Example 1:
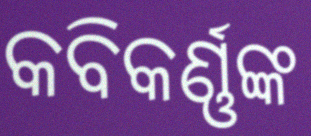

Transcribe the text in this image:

କବିକର୍ଣ୍ଣଙ୍କ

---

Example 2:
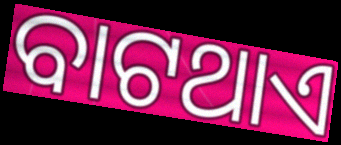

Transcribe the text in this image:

ବାଟଥାଏ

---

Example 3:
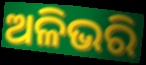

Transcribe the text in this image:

ଅଳିଭରି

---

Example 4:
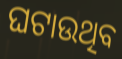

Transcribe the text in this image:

ଘଟାଉଥିବ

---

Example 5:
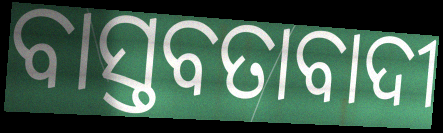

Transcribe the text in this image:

ବାସ୍ତବତାବାଦୀ